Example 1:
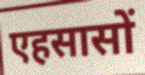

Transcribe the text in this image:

एहसासों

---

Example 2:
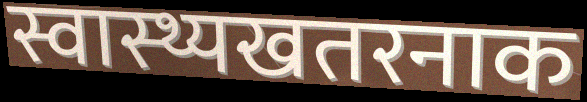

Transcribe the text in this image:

स्वास्थ्यखतरनाक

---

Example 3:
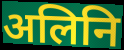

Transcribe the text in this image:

अलिनि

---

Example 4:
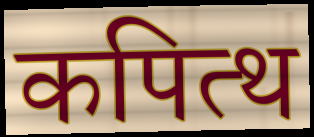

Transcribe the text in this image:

कपित्थ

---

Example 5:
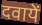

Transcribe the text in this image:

दवायें